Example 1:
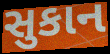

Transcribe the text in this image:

સુકાન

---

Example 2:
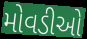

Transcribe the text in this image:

મોવડીઓ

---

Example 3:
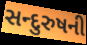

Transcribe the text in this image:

સન્દુરુષની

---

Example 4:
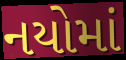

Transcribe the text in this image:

નયોમાં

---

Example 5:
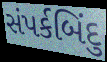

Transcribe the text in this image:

સંપર્કબિંદુ